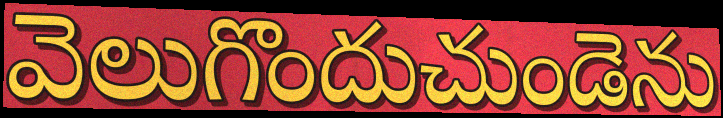
వెలుగొందుచుండెను